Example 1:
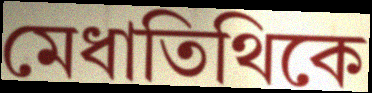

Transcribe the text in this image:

মেধাতিথিকে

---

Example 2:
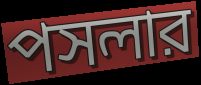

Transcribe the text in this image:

পসলার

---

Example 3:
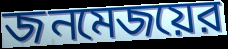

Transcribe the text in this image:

জনমেজয়ের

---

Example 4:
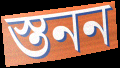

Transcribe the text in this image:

স্তনন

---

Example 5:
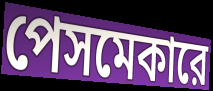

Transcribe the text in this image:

পেসমেকারে